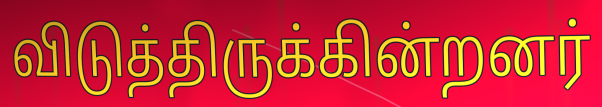
விடுத்திருக்கின்றனர்